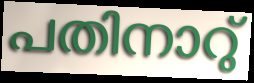
പതിനാറു്